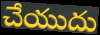
చేయుదు